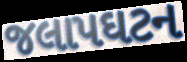
જલાપઘટન